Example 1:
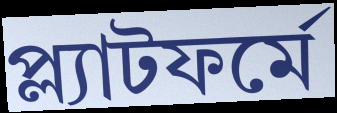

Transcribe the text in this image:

প্ল্যাটফর্মে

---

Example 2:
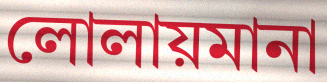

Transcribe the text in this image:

লোলায়মানা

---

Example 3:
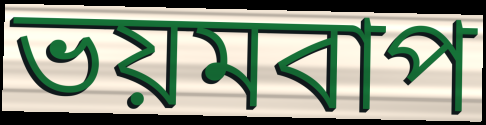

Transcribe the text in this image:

ভয়মবাপ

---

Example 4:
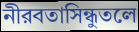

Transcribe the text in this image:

নীরবতাসিন্ধুতলে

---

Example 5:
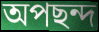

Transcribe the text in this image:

অপছন্দ